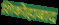
शिकोहाबाद